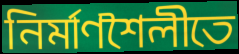
নির্মাণশৈলীতে